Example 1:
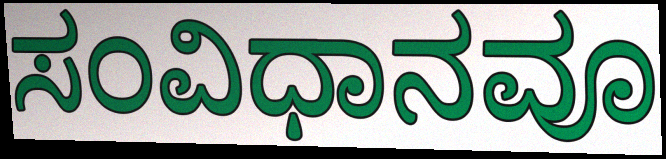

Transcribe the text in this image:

ಸಂವಿಧಾನವೂ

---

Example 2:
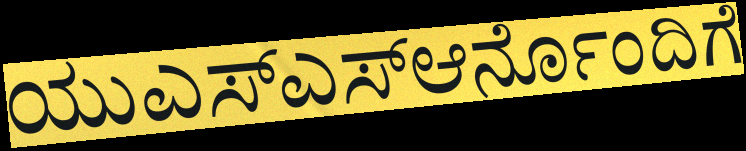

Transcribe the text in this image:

ಯುಎಸ್ಎಸ್ಆರ್ನೊಂದಿಗೆ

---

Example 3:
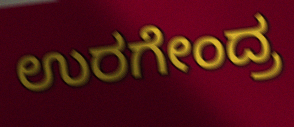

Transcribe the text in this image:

ಉರಗೇಂದ್ರ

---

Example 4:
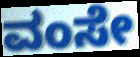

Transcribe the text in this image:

ವಂಸೇ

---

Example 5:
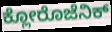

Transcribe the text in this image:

ಕ್ಲೋರೊಜೆನಿಕ್